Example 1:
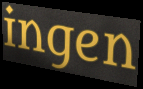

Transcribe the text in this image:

ingen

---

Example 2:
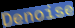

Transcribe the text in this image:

Denoise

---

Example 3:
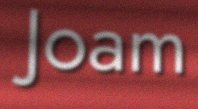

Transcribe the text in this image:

Joam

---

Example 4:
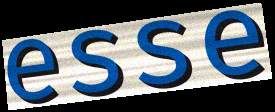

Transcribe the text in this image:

esse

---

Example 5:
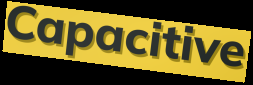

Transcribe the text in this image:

Capacitive